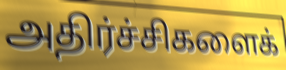
அதிர்ச்சிகளைக்